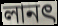
লানৎ